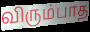
விரும்பாத